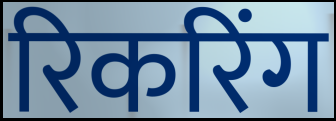
रिकरिंग